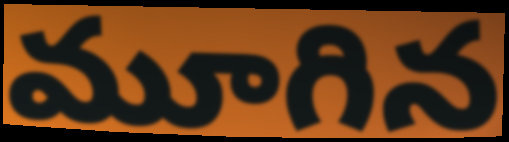
మూగిన